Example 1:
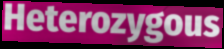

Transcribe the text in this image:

Heterozygous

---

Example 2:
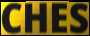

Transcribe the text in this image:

CHES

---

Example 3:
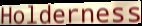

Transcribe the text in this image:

Holderness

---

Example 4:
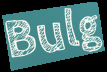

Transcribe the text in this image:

Bulg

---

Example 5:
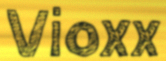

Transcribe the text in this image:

Vioxx